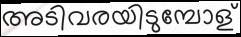
അടിവരയിടുമ്പോള്